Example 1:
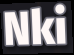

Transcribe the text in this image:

Nki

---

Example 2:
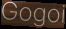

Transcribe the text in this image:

Gogoi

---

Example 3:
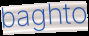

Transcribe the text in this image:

baghto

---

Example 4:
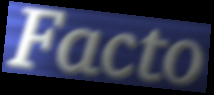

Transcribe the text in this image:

Facto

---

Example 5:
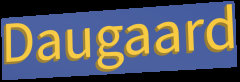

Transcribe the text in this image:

Daugaard